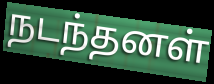
நடந்தனள்